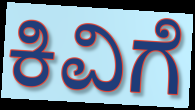
ಕಿವಿಗೆ